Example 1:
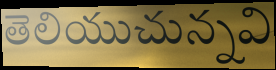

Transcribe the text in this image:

తెలియుచున్నవి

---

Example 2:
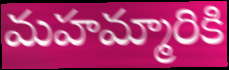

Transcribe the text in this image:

మహమ్మారికి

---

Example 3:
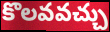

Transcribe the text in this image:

కొలవవచ్చు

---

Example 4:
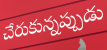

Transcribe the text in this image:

చేరుకున్నప్పుడు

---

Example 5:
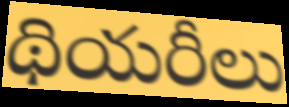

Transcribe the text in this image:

థియరీలు